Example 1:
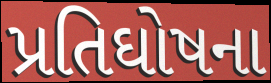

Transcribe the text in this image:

પ્રતિઘોષના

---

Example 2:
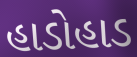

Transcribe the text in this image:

હાડોહાડ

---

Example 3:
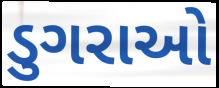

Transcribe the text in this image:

ડુગરાઓ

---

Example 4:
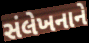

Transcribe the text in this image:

સંલેખનાને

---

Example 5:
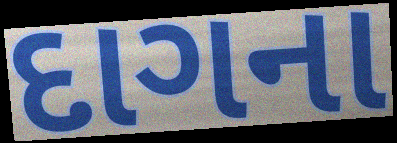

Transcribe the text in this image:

દાગના